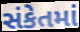
સંકેતમાં